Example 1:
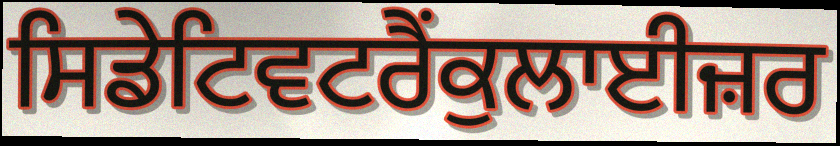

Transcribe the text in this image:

ਸਿਡੇਟਿਵਟਰੈਂਕੁਲਾਈਜ਼ਰ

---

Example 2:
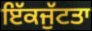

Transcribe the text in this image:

ਇੱਕਜੁੱਟਤਾ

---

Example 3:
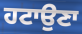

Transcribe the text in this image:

ਹਟਾਉਣਾ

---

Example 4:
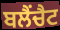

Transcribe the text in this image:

ਬਲੈਂਚੈਟ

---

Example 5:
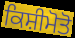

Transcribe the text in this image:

ਕਿਸ਼ੀਮੋਤੋ